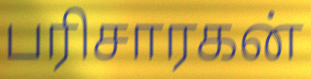
பரிசாரகன்